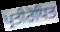
ਪ੍ਰਤੀਰੋਧਿਤ